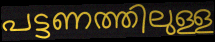
പട്ടണത്തിലുള്ള